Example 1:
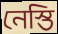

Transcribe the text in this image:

নেস্তি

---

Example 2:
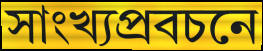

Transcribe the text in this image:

সাংখ্যপ্রবচনে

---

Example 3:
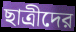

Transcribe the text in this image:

ছাত্রীদের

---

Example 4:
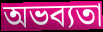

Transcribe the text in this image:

অভব্যতা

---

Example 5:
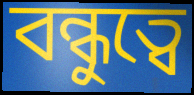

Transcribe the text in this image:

বন্ধুত্বে